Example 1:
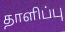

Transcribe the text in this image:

தாளிப்பு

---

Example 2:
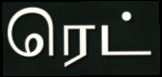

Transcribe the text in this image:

ரெட்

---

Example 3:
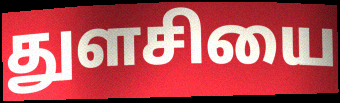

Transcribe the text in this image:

துளசியை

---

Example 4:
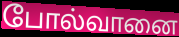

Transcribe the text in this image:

போல்வானை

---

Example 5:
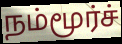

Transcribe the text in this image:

நம்மூர்ச்